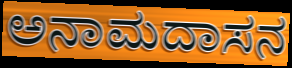
ಅನಾಮದಾಸನ